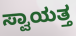
ಸ್ವಾಯತ್ತ